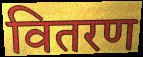
वितरण